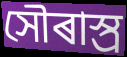
সৌৰাস্ত্ৰ